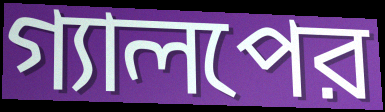
গ্যালপের